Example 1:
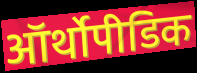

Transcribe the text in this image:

ऑर्थोपीडिक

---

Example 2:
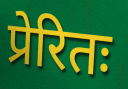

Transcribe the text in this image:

प्रेरितः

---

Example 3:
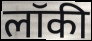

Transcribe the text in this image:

लॉकी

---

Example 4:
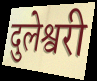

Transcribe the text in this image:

दुलेश्वरी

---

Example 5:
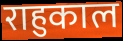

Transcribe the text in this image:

राहुकाल